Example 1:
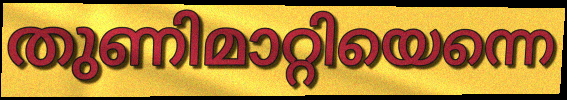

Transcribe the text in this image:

തുണിമാറ്റിയെന്നെ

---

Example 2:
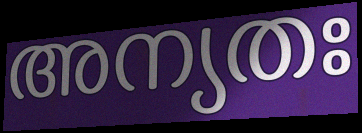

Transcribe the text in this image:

അന്യതഃ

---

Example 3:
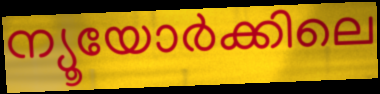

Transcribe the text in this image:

ന്യൂയോർക്കിലെ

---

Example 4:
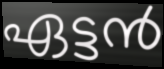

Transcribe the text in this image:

ഏട്ടൻ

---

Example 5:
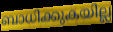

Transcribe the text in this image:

ബാധിക്കുകയില്ല